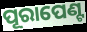
ପୂରାପେଣ୍ଟ